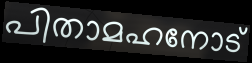
പിതാമഹനോട്